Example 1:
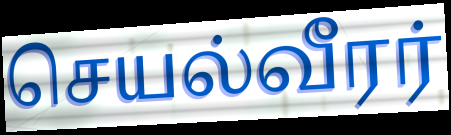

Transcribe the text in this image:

செயல்வீரர்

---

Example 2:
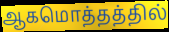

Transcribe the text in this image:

ஆகமொத்தத்தில்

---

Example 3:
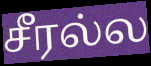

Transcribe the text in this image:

சீரல்ல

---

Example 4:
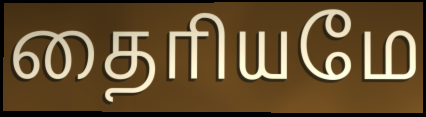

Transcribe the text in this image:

தைரியமே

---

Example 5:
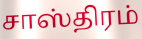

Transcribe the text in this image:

சாஸ்திரம்